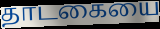
தாடகையை